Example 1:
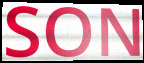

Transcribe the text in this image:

SON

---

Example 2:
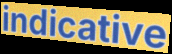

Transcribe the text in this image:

indicative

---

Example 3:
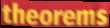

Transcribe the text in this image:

theorems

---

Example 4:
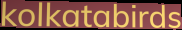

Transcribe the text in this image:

kolkatabirds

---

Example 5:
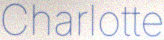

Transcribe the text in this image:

Charlotte